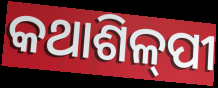
କଥାଶିଳ୍‌ପୀ